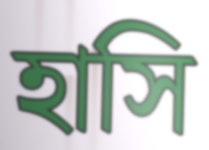
হাসি